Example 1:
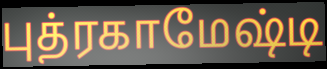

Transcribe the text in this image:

புத்ரகாமேஷ்டி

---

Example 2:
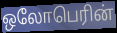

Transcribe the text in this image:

ஒலோபெரின்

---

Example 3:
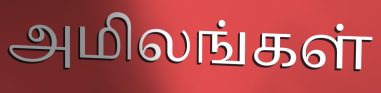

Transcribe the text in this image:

அமிலங்கள்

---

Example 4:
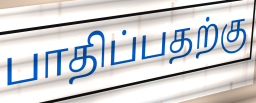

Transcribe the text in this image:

பாதிப்பதற்கு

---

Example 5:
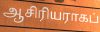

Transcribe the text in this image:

ஆசிரியராகப்